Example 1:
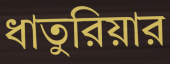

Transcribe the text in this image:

ধাতুরিয়ার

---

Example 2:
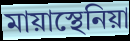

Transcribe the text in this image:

মায়াস্থেনিয়া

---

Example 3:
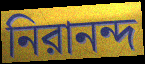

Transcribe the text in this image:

নিরানন্দ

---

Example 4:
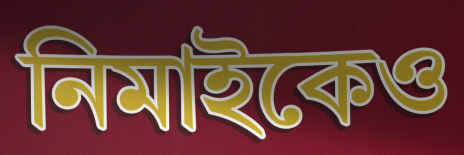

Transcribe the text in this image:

নিমাইকেও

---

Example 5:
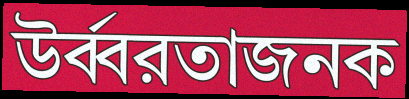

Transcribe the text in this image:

উর্ব্বরতাজনক